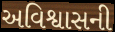
અવિશ્વાસની